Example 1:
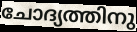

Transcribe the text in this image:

ചോദ്യത്തിനു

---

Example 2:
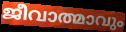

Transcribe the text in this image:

ജീവാത്മാവും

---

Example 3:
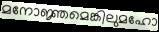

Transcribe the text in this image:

മനോജ്ഞമെങ്കിലുമഹോ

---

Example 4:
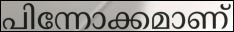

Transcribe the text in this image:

പിന്നോക്കമാണ്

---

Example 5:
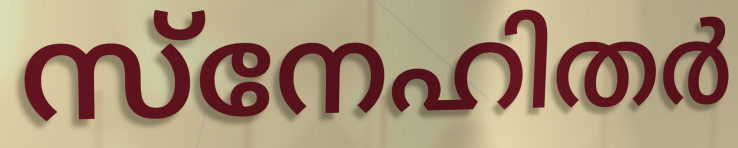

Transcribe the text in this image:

സ്നേഹിതർ